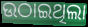
ଉଠାଇଥିଲା